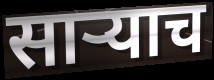
साऱ्याच